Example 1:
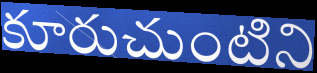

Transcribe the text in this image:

కూరుచుంటిని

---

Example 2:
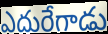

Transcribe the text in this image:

ఎదురేగాడు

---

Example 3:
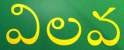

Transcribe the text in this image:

విలవ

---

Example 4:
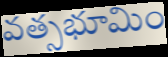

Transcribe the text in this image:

వత్సభూమిం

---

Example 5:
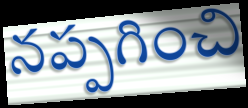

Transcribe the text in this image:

నప్పగించి